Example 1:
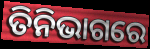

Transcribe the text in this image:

ତିନିଭାଗରେ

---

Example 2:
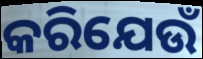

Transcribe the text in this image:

କରିଯେଉଁ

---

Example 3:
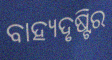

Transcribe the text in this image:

ବାହ୍ୟଦୃଷ୍ଟିର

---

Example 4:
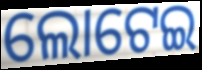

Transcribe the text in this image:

ଲୋଟେଇ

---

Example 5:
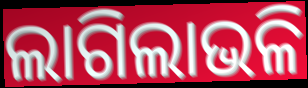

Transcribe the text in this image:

ଲାଗିଲାଭଳି